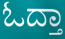
ಓದ್ತಾ